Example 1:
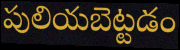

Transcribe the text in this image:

పులియబెట్టడం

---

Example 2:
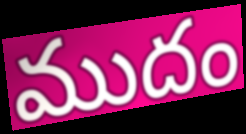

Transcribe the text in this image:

ముదం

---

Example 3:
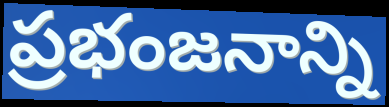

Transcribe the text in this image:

ప్రభంజనాన్ని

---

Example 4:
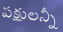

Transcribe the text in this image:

పక్షులన్నీ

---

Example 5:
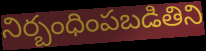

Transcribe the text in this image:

నిర్బంధింపబడితిని